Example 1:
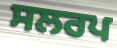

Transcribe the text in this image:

ਸਲਰਪ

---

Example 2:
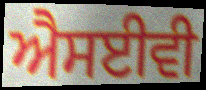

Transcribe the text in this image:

ਐਸਈਵੀ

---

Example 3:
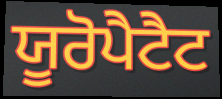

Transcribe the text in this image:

ਯੂਰੋਪੈਟੈਟ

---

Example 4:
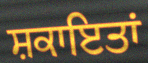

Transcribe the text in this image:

ਸ਼ਕਾਇਤਾਂ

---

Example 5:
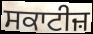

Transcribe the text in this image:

ਸਕਾਟੀਜ਼